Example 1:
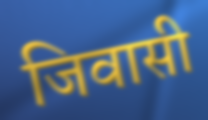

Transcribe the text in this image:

जिवासी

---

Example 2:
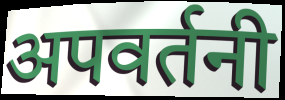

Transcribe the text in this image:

अपवर्तनी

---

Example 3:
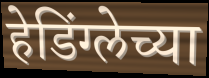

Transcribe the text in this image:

हेडिंग्लेच्या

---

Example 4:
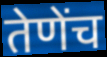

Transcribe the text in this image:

तेणेंच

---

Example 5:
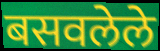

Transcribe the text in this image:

बसवलेले